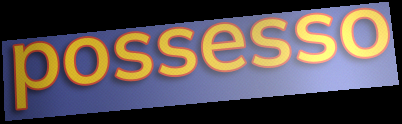
possesso